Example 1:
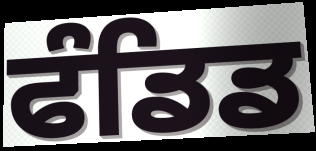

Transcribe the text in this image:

ਫੰਡਿਡ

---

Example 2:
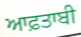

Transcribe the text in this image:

ਆਫ਼ਤਾਬੀ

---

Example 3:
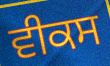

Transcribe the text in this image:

ਵੀਕਸ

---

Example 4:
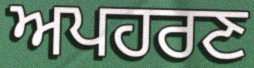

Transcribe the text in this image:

ਅਪਹਰਣ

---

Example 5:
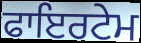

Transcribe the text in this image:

ਫਾਇਰਟੇਮ